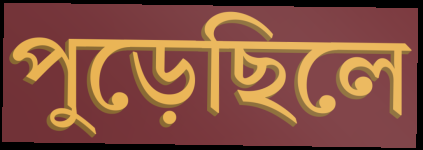
পুড়েছিলে